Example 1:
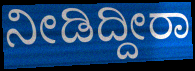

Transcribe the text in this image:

ನೀಡಿದ್ದೀರಾ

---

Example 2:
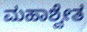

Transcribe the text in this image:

ಮಹಾಶ್ವೇತ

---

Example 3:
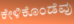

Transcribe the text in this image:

ಕೇಳಿಕೊಂಡೆವು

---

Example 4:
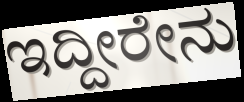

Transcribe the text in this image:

ಇದ್ದೀರೇನು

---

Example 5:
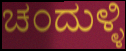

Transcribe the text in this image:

ಚಂದುಳ್ಳಿ